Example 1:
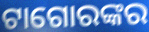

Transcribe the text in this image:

ଟାଗୋରଙ୍କର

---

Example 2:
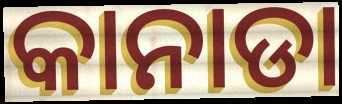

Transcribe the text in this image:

କାନାଡା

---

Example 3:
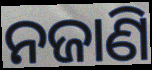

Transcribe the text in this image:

ନଜାଣି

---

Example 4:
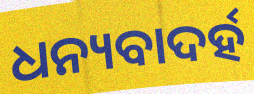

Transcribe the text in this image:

ଧନ୍ୟବାଦର୍ହ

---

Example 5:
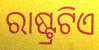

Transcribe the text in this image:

ରାଷ୍ଟ୍ରଟିଏ